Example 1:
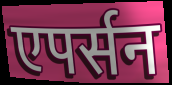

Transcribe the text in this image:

एपर्सन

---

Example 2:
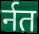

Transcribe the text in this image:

र्नत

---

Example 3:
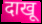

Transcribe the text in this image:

दाखू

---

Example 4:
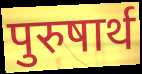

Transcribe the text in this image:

पुरुषार्थ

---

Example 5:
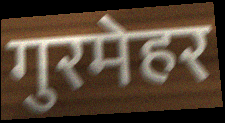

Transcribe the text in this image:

गुरमेहर